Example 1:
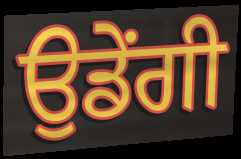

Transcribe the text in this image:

ਉਡੇਂਗੀ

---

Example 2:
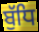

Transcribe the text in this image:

ਬੁੱਧਿ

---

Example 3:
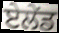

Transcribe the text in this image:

ਏਲੇਂਡ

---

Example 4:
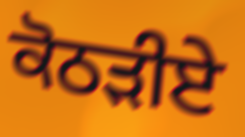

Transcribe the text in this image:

ਕੋਠੜੀਏ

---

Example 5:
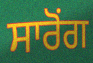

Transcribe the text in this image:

ਸਾਰੋਂਗ